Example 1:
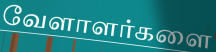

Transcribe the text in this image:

வேளாளர்களை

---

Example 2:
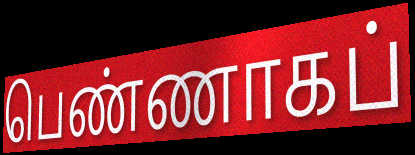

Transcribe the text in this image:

பெண்ணாகப்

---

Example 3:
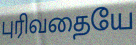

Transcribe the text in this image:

புரிவதையே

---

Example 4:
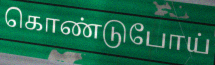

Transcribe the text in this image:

கொண்டுபோய்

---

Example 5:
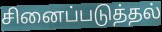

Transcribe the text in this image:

சினைப்படுத்தல்